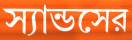
স্যান্ডসের